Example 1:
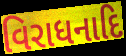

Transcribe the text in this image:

વિરાધનાદિ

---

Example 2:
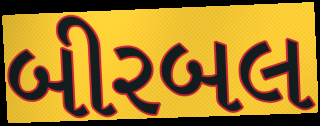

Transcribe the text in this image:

બીરબલ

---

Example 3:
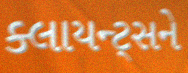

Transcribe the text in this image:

ક્લાયન્ટ્સને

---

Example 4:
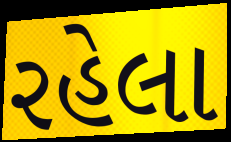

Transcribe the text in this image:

રહેલા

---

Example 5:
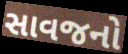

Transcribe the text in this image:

સાવજનો